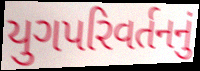
યુગપરિવર્તનનું